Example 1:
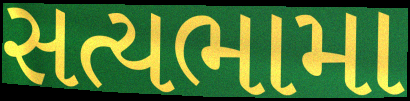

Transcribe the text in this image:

સત્યભામા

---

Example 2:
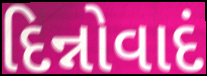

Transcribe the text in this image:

દિન્નોવાદં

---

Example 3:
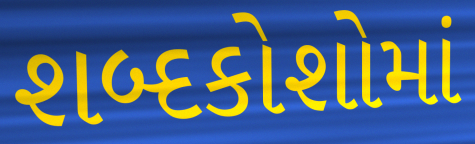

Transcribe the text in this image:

શબ્દકોશોમાં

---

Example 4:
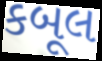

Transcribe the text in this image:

કબૂલ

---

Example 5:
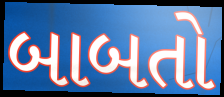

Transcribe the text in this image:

બાબતો